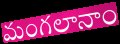
మంగలానాం